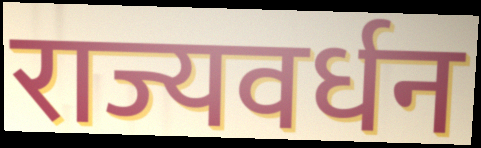
राज्यवर्धन